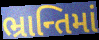
ભ્રાન્તિમાં